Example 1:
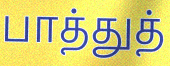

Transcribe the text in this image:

பாத்துத்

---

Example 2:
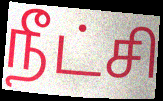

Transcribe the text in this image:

நீட்சி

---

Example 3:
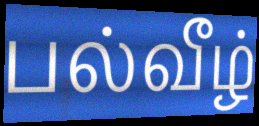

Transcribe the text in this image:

பல்வீழ்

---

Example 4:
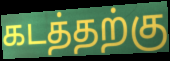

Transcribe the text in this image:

கடத்தற்கு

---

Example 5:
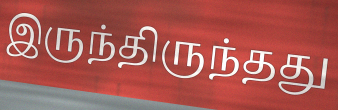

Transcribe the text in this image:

இருந்திருந்தது